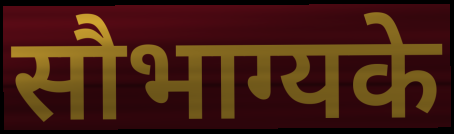
सौभाग्यके